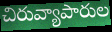
చిరువ్యాపారుల